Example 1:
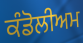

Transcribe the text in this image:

ਕੰਡੋਲੀਅਮ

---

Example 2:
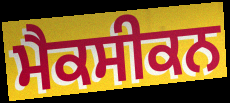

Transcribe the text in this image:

ਮੈਕਸੀਕਨ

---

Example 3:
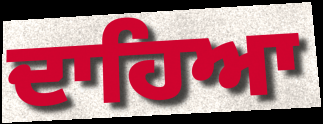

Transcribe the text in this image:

ਦਾਹਿਆ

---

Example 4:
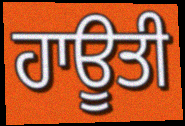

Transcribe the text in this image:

ਹਾਊਤੀ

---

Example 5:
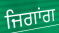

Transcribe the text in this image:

ਜਿਗਾਂਗ